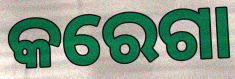
କରେଗା